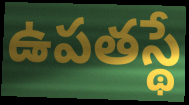
ఉపతస్థే